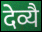
देव्यै